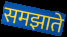
समझाते